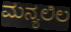
ಮನ್ಯಲಿಲ